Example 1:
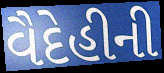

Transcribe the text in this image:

વૈદેહીની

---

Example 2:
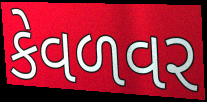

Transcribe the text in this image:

કેવળવર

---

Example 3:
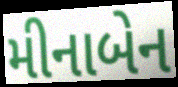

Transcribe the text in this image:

મીનાબેન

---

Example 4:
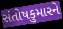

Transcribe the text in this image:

સંતોષકુમારને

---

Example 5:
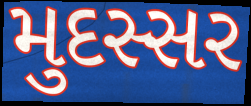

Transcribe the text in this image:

મુદસ્સર